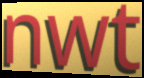
nwt